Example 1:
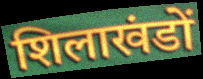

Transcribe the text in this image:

शिलाखंडों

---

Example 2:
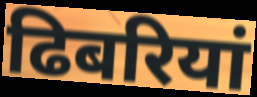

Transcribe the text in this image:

ढिबरियां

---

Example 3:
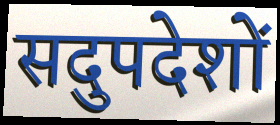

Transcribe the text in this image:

सदुपदेशों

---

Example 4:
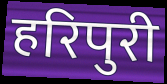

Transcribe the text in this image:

हरिपुरी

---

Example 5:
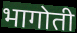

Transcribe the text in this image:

भागोती